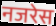
नजरेस